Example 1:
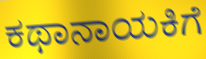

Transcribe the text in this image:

ಕಥಾನಾಯಕಿಗೆ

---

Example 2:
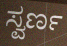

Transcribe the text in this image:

ಸ್ವರ್ಣ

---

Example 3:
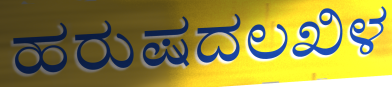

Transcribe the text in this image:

ಹರುಷದಲಖಿಳ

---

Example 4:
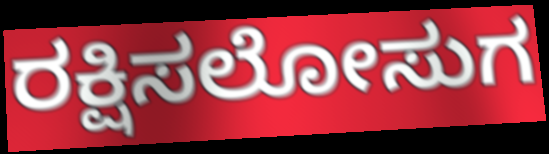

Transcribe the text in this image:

ರಕ್ಷಿಸಲೋಸುಗ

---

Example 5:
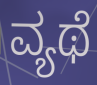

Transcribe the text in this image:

ವ್ಯಥೆ